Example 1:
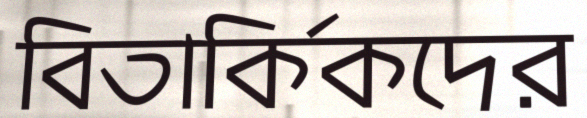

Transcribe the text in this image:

বিতার্কিকদের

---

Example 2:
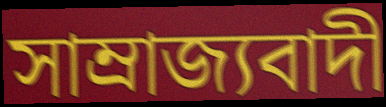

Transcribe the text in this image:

সাম্রাজ্যবাদী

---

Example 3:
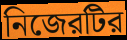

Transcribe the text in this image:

নিজেরটির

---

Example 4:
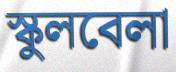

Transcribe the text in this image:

স্কুলবেলা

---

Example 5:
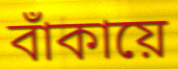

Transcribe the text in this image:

বাঁকায়ে